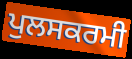
ਪੁਲਸਕਰਮੀ